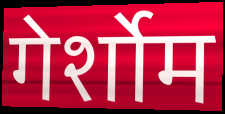
गेर्शोम